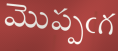
మొప్పఁగ